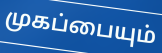
முகப்பையும்